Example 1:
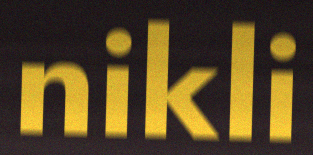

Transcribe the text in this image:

nikli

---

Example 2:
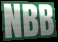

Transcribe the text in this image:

NBB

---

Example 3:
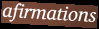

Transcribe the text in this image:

afirmations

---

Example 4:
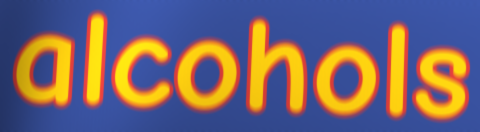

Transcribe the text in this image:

alcohols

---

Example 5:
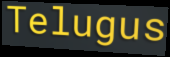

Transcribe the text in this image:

Telugus